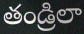
తండ్రిలా